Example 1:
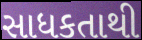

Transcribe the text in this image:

સાધકતાથી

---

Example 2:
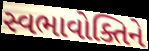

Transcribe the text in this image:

સ્વભાવોક્તિને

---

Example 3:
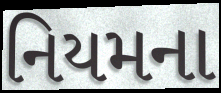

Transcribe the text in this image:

નિયમના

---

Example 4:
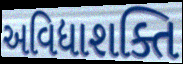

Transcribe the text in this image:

અવિદ્યાશક્તિ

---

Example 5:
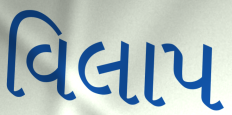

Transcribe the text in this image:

વિલાપ